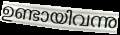
ഉണ്ടായിവന്നു